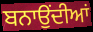
ਬਨਾਉਂਦੀਆਂ